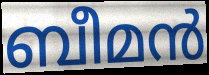
ബീമൻ